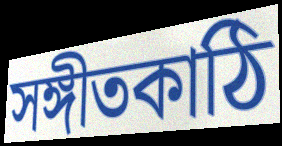
সঙ্গীতকাঠি